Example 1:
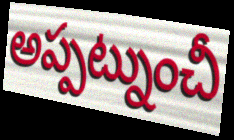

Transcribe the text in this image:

అప్పట్నుంచీ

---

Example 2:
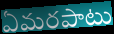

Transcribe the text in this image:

ఏమరపాటు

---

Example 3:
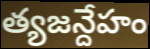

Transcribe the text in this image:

త్యజన్దేహం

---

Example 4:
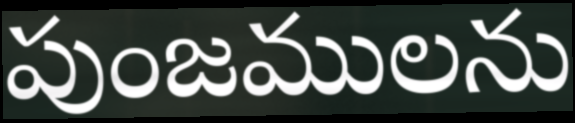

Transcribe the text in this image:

పుంజములను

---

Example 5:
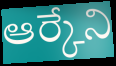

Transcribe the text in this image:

ఆర్కేని